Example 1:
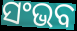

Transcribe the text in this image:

ସଂଭବ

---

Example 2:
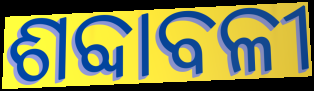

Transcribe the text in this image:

ଶବ୍ଦାବଳୀ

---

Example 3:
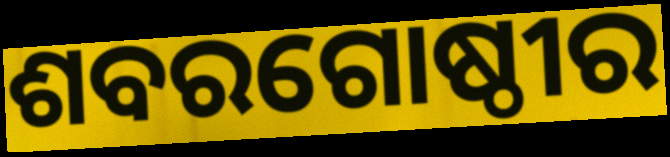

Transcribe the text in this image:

ଶବରଗୋଷ୍ଠୀର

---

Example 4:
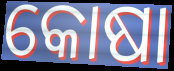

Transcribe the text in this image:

କୋଷା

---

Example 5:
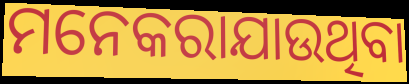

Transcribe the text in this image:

ମନେକରାଯାଉଥିବା